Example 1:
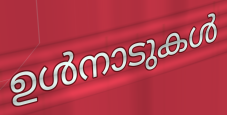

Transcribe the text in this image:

ഉൾനാടുകൾ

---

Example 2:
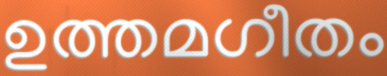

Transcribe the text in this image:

ഉത്തമഗീതം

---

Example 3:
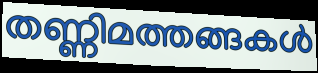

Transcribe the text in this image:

തണ്ണിമത്തങ്ങകൾ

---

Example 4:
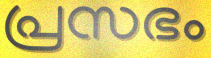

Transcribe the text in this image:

പ്രസഭം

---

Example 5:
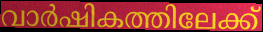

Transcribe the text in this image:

വാർഷികത്തിലേക്ക്